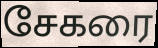
சேகரை